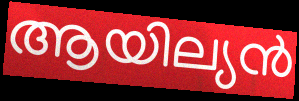
ആയില്യൻ